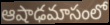
ఆషాఢమాసంలో